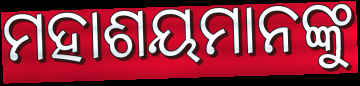
ମହାଶୟମାନଙ୍କୁ